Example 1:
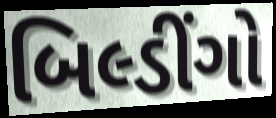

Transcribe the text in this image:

બિલ્ડીંગો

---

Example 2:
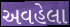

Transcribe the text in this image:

અવહેલા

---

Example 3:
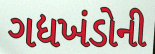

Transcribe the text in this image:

ગદ્યખંડોની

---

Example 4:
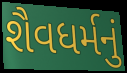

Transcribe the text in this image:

શૈવધર્મનું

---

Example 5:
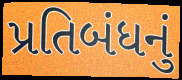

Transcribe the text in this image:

પ્રતિબંધનું